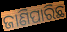
ଜାଣିପାରିଛ